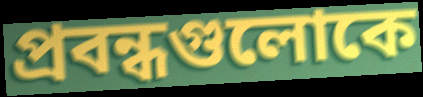
প্রবন্ধগুলোকে